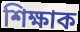
শিক্ষাক